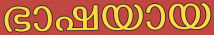
ഭാഷയായ